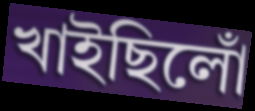
খাইছিলোঁ